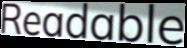
Readable